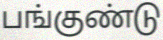
பங்குண்டு